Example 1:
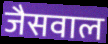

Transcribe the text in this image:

जैसवाल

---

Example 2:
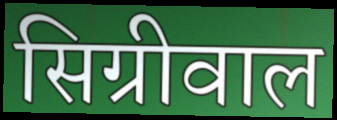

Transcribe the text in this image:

सिग्रीवाल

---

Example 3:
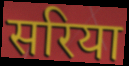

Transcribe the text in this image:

सरिया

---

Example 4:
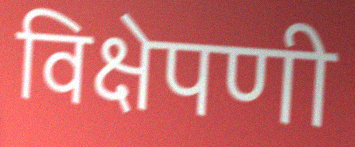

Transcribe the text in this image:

विक्षेपणी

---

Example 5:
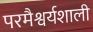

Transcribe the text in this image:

परमैश्वर्यशाली